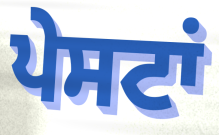
ਪੇਸਟਾਂ